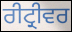
ਰੀਟ੍ਰੀਵਰ